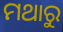
ମଥାରୁ